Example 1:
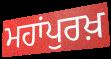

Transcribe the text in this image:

ਮਹਾਂਪੁਰਖ਼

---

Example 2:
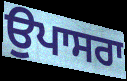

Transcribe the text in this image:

ਉਪਾਸਰਾ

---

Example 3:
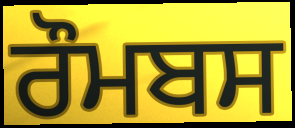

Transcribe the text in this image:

ਰੌਮਬਸ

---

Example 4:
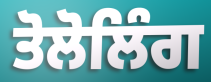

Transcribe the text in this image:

ਤੋਲੋਲਿੰਗ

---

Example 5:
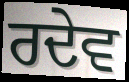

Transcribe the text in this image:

ਰਦੇਵ